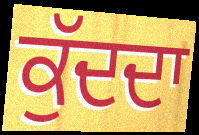
ਕੁੱਦਦਾ